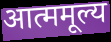
आत्ममूल्य